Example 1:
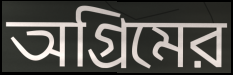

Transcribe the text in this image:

অগ্রিমের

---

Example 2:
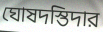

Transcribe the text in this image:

ঘোষদস্তিদার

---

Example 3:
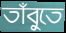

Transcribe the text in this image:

তাঁবুতে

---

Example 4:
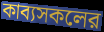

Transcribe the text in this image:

কাব্যসকলের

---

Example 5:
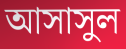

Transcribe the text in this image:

আসাসুল